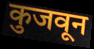
कुजवून